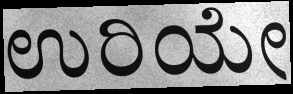
ಉರಿಯೇ